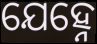
ଯେହ୍ନେ